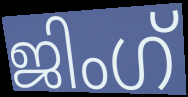
ജിംഗ്